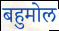
बहुमोल